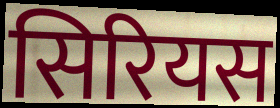
सिरियस